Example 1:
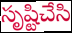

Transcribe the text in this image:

సృష్టిచేసి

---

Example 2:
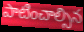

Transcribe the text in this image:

పాటించాల్సిన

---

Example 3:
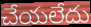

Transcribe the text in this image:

చేయలేదు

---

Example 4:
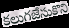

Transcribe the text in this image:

కలుగజేసుకొని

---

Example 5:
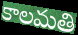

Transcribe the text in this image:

కాలమతి